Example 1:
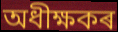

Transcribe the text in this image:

অধীক্ষকৰ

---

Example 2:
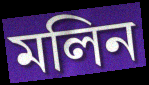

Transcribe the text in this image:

মলিন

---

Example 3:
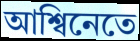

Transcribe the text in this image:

আশ্বিনেতে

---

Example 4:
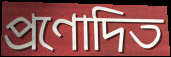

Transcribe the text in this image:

প্ৰণোদিত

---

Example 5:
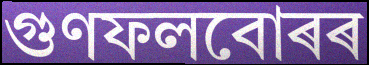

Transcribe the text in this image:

গুণফলবোৰৰ